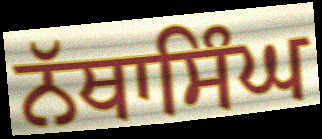
ਨੱਥਾਸਿੰਘ